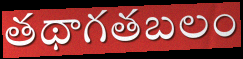
తథాగతబలం